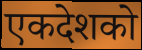
एकदेशको